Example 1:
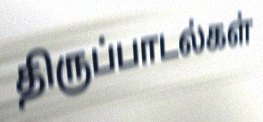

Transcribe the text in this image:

திருப்பாடல்கள்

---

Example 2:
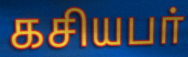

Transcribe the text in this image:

கசியபர்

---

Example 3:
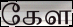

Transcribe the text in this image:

கேள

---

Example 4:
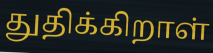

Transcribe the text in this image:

துதிக்கிறாள்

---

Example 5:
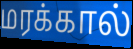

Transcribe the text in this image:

மரக்கால்